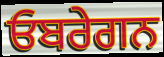
ਓਬਰੇਗਨ